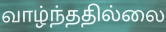
வாழ்ந்ததில்லை